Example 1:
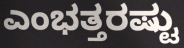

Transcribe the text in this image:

ಎಂಭತ್ತರಷ್ಟು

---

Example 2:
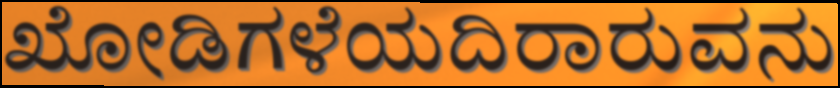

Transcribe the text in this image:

ಖೋಡಿಗಳೆಯದಿರಾರುವನು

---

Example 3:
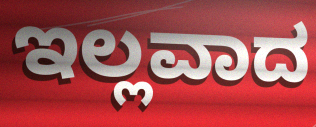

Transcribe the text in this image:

ಇಲ್ಲವಾದ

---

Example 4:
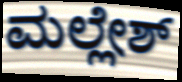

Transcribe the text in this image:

ಮಲ್ಲೇಶ್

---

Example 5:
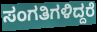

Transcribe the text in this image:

ಸಂಗತಿಗಳಿದ್ದರೆ